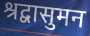
श्रद्वासुमन